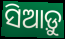
ସିଆଡ଼ୁ